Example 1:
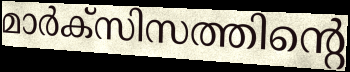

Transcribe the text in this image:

മാർക്സിസത്തിന്റെ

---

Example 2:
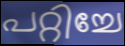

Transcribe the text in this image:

പറ്റിച്ചേ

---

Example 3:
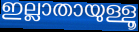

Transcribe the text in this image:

ഇല്ലാതായുള്ളൂ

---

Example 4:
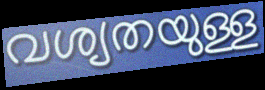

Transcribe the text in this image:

വശ്യതയുള്ള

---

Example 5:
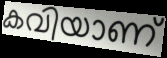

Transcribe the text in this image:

കവിയാണ്